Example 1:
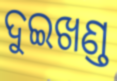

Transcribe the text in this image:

ଦୁଇଖଣ୍ଡ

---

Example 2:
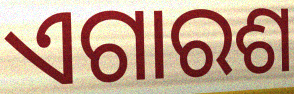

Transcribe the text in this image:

ଏଗାରଶ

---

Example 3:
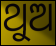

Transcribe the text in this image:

ଥୁଅ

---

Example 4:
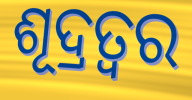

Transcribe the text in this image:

ଶୂଦ୍ରତ୍ଵର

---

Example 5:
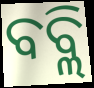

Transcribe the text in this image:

ବବ୍ଲି